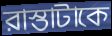
রাস্তাটাকে